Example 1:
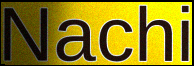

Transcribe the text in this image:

Nachi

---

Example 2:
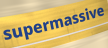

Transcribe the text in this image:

supermassive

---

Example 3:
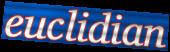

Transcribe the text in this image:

euclidian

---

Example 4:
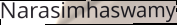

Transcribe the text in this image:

Narasimhaswamy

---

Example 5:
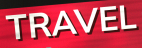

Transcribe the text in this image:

TRAVEL